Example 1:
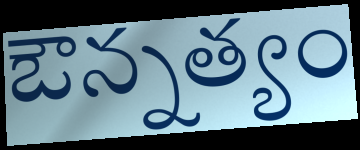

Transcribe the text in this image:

ఔన్నత్యం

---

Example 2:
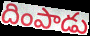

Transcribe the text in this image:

దింపాడు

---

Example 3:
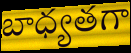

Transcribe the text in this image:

బాధ్యతగా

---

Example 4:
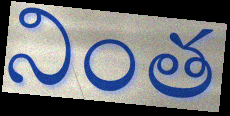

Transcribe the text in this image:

నింత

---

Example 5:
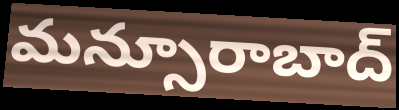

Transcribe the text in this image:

మన్సూరాబాద్